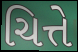
ચિત્તે